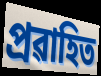
প্ৰৱাহিত